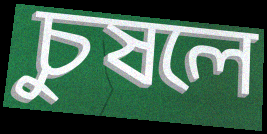
চুষলে